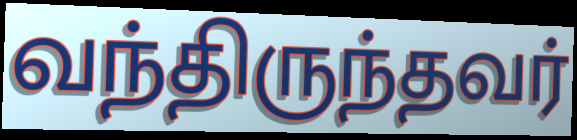
வந்திருந்தவர்